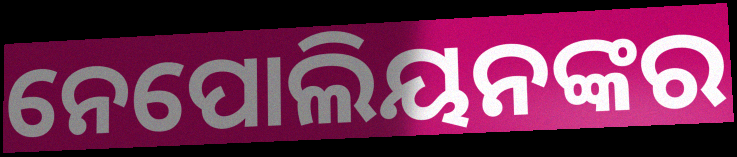
ନେପୋଲିୟନଙ୍କର